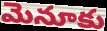
మెనూకు